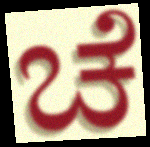
ಚೆ